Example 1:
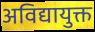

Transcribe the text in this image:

अविद्यायुक्त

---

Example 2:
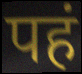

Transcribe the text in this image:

पहं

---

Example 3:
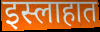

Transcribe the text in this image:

इस्लाहात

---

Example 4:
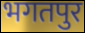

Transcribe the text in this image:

भगतपुर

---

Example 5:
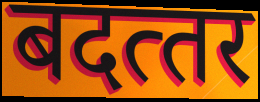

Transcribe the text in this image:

बदत्‍तर